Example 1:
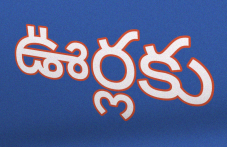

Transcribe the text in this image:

ఊర్లకు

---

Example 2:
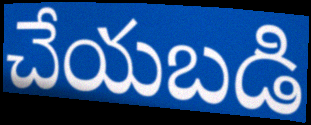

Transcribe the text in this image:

చేయబడి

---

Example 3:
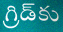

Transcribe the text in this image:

గ్రిడ్‌కు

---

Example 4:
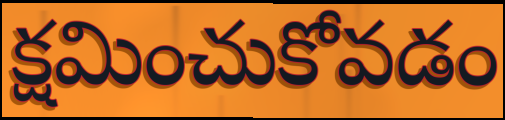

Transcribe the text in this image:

క్షమించుకోవడం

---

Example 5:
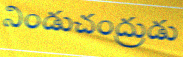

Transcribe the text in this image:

నిండుచంద్రుడు